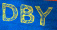
DBY